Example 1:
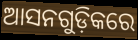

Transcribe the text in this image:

ଆସନଗୁଡ଼ିକରେ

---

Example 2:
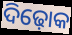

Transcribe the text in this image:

ଦିଢ଼ୋକ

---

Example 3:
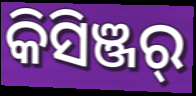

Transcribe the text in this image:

କିସିଞ୍ଜର୍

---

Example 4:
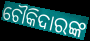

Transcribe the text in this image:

ଚୌକିଦାରଙ୍କ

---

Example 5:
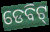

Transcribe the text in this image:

ଡେବିଟ୍